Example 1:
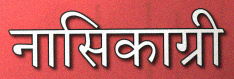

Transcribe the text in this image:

नासिकाग्री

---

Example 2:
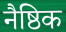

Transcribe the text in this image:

नैष्ठिक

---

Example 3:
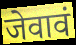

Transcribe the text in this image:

जेवावं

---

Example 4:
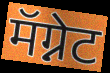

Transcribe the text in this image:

मॅग्नेट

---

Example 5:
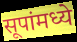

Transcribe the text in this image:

सूपांमध्ये